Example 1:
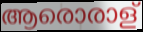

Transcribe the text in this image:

ആരൊരാള്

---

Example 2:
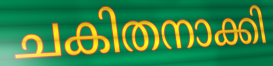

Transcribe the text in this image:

ചകിതനാക്കി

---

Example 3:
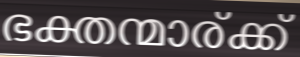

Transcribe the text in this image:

ഭക്തന്മാര്ക്ക്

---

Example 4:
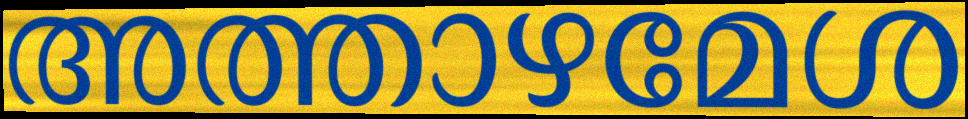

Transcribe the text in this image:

അത്താഴമേശ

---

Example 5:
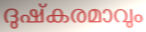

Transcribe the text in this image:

ദുഷ്‌കരമാവും